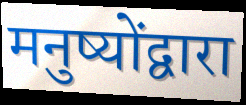
मनुष्योंद्वारा